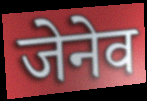
जेनेव